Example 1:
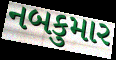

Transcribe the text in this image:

નબકુમાર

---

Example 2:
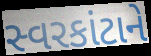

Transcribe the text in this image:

સ્વરકાંટાને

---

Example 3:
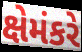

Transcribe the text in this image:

ક્ષેમંકરે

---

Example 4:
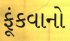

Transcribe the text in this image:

ફૂંકવાનો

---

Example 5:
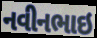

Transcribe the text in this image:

નવીનભાઇ